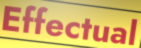
Effectual